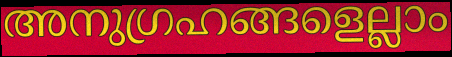
അനുഗ്രഹങ്ങളെല്ലാം